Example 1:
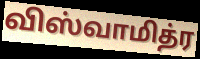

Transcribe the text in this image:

விஸ்வாமித்ர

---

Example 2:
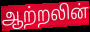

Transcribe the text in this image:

ஆற்றலின்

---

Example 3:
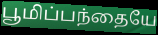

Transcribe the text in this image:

பூமிப்பந்தையே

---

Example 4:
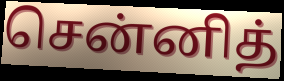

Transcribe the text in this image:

சென்னித்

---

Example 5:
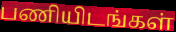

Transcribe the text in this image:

பணியிடங்கள்